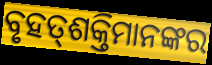
ବୃହତ୍‌ଶକ୍ତିମାନଙ୍କର